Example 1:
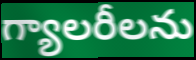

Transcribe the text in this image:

గ్యాలరీలను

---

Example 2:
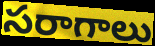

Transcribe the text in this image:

సరాగాలు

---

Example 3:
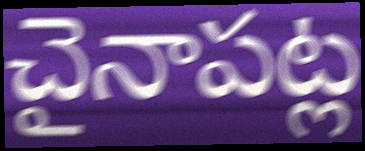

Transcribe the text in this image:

చైనాపట్ల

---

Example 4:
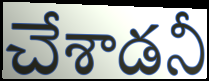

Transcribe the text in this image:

చేశాడనీ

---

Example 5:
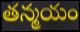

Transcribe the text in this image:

తన్మయం